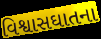
વિશ્વાસઘાતના